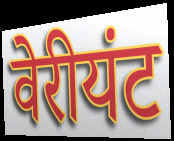
वेरीयंट